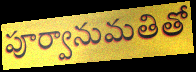
పూర్వానుమతితో